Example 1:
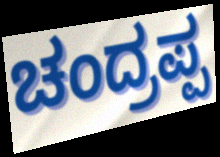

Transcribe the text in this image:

ಚಂದ್ರಪ್ಪ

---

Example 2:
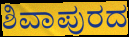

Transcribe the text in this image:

ಶಿವಾಪುರದ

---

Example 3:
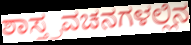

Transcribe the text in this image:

ಶಾಸ್ತ್ರವಚನಗಳಲ್ಲಿನ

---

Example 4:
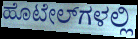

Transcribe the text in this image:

ಹೊಟೇಲ್‌ಗಳಲ್ಲಿ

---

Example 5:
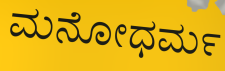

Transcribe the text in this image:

ಮನೋಧರ್ಮ